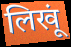
लिखूं